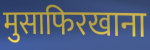
मुसाफिरखाना